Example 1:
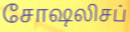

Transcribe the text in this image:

சோஷலிசப்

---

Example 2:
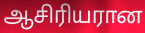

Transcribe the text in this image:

ஆசிரியரான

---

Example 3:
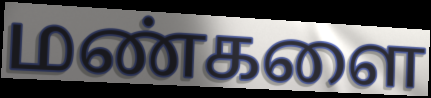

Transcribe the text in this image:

மண்களை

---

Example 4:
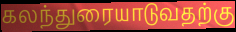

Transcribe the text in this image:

கலந்துரையாடுவதற்கு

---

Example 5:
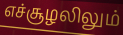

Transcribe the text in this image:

எச்சூழலிலும்